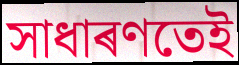
সাধাৰণতেই